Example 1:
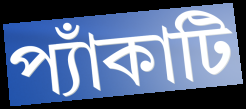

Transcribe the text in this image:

প্যাঁকাটি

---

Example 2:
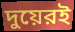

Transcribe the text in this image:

দুয়েরই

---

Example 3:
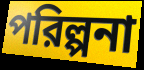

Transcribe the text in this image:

পরিল্পনা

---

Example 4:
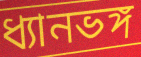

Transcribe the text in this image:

ধ্যানভঙ্গ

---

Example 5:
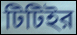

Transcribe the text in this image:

টিটিইর